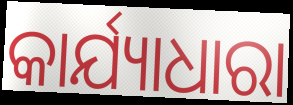
କାର୍ଯ୍ୟାଧାରା